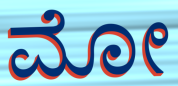
ಮೋ